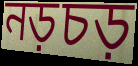
নড়চড়